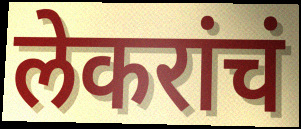
लेकरांचं